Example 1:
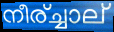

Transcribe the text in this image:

നീര്ച്ചാല്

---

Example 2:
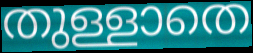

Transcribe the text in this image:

തുള്ളാതെ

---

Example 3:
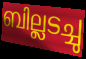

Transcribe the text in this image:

ബില്ലടച്ചു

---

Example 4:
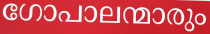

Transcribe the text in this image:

ഗോപാലന്മാരും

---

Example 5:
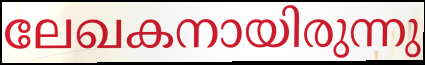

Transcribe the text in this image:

ലേഖകനായിരുന്നു